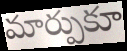
మార్పుకూ